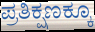
ಪ್ರತಿಕ್ಷಣಕ್ಕೂ